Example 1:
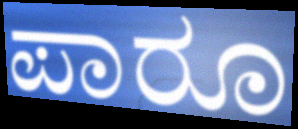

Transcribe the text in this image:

ಪಾರೂ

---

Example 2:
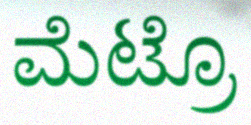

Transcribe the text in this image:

ಮೆಟ್ರೊ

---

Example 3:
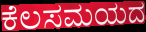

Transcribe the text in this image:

ಕೆಲಸಮಯದ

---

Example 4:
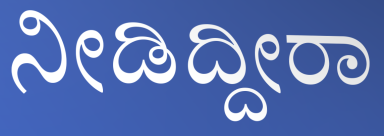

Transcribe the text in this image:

ನೀಡಿದ್ದೀರಾ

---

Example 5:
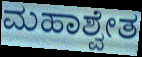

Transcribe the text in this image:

ಮಹಾಶ್ವೇತ